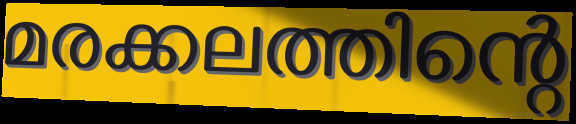
മരക്കലത്തിന്റെ